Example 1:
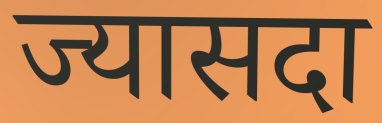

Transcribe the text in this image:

ज्यासदा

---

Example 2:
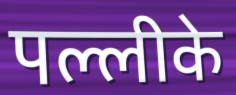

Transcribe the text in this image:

पल्लीके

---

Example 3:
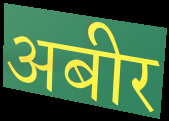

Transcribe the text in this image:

अबीर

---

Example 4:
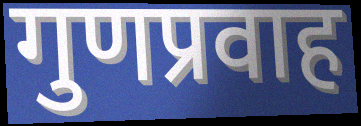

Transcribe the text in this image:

गुणप्रवाह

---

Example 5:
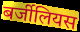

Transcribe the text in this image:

बर्जीलियस